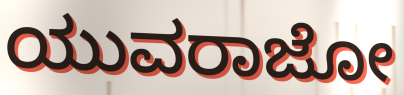
ಯುವರಾಜೋ